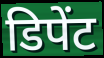
डिपेंट